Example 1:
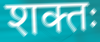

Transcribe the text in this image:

शक्तः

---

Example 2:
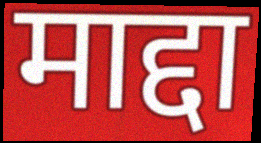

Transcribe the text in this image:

माद्दा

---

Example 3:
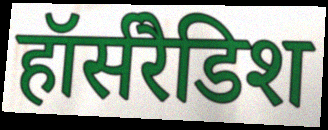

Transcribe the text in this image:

हॉर्सरैडिश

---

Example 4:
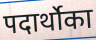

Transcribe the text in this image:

पदार्थोका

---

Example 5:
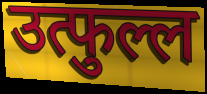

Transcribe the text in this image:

उत्फुल्ल